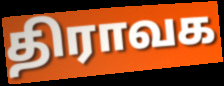
திராவக